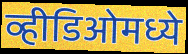
व्हीडिओमध्ये